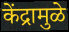
केंद्रामुळे